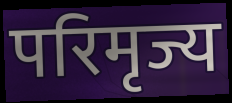
परिमृज्य